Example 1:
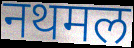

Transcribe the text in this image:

नथमल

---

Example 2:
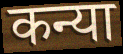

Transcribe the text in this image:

कन्या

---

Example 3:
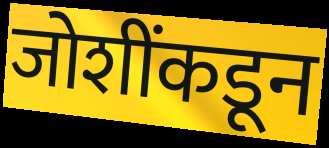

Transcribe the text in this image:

जोशींकडून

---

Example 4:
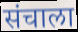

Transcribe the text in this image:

संचाला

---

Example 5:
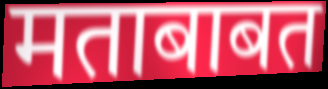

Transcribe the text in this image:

मताबाबत